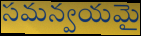
సమన్వయమై